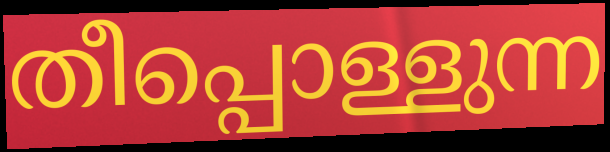
തീപ്പൊള്ളുന്ന